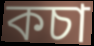
কচা